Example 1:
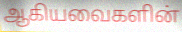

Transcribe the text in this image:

ஆகியவைகளின்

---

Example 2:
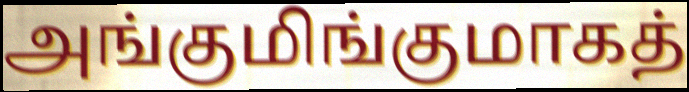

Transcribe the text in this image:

அங்குமிங்குமாகத்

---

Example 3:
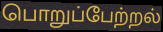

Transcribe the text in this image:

பொறுப்பேற்றல்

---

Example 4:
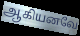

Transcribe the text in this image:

ஆகியனவே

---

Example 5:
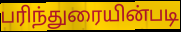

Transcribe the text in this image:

பரிந்துரையின்படி